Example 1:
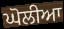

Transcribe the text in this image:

ਘੋਲੀਆ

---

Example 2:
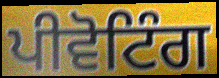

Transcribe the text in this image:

ਪੀਵੋਟਿੰਗ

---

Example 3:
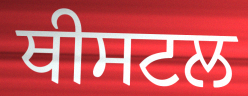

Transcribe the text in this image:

ਥੀਸਟਲ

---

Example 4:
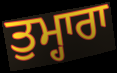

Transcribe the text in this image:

ਤੁਮ੍ਹਾਰਾ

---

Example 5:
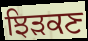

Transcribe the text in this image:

ਝਿੜਕਣ